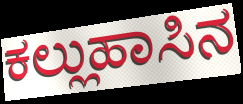
ಕಲ್ಲುಹಾಸಿನ